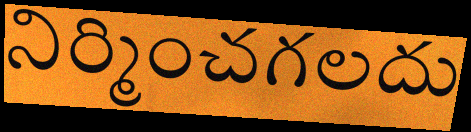
నిర్మించగలదు